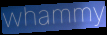
whammy